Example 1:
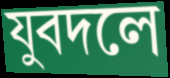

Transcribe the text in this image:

যুবদলে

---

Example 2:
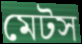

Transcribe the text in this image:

মেটস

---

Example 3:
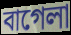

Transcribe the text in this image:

বাগেলা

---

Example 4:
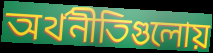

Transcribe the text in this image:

অর্থনীতিগুলোয়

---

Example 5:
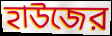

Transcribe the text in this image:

হাউজের